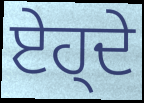
ਏਹ੍ਦੇ